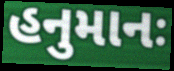
હનુમાનઃ